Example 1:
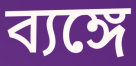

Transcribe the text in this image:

ব্যঙ্গে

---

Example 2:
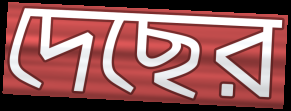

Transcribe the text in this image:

দেছের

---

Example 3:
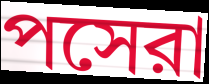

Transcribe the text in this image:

পসেরা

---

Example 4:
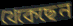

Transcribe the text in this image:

থেকেছেন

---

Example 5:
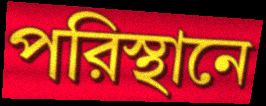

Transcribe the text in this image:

পরিস্থানে